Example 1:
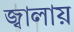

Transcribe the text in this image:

জ্বালায়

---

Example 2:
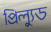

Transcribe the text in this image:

প্রিল্যুড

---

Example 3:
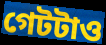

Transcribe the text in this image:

গেটটাও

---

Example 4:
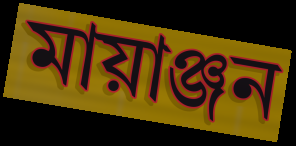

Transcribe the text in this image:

মায়াঞ্জন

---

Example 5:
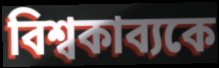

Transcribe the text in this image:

বিশ্বকাব্যকে